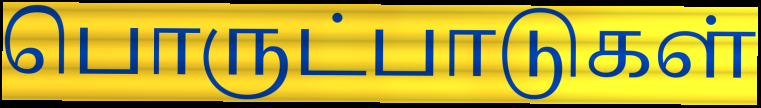
பொருட்பாடுகள்